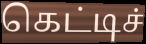
கெட்டிச்